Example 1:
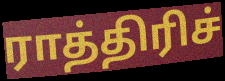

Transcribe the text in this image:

ராத்திரிச்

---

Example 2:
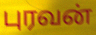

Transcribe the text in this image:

புரவன்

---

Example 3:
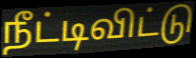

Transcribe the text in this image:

நீட்டிவிட்டு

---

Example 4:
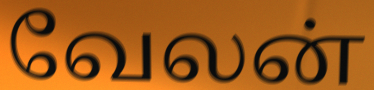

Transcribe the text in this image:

வேலன்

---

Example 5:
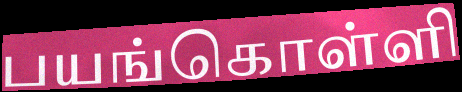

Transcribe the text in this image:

பயங்கொள்ளி